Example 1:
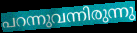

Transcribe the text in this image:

പറന്നുവന്നിരുന്നു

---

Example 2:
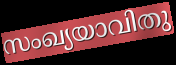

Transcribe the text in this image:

സംഖ്യയാവിതു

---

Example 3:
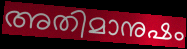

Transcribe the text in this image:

അതിമാനുഷം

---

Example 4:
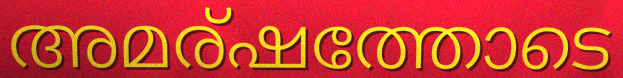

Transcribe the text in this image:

അമര്ഷത്തോടെ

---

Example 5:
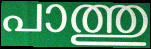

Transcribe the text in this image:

പാത്തു